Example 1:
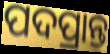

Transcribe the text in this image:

ପଦପ୍ରାନ୍ତ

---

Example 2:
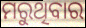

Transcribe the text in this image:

ମରୁଥିବାର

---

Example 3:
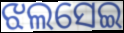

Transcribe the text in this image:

ଝଲସେଇ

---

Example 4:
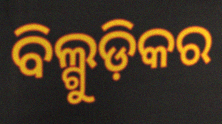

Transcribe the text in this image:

ବିଲ୍ଗୁଡ଼ିକର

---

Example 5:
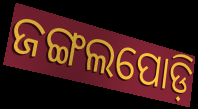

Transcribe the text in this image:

ଜଙ୍ଗଲପୋଡ଼ି